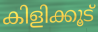
കിളിക്കൂട്